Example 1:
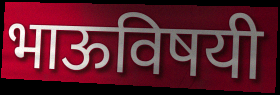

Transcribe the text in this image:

भाऊविषयी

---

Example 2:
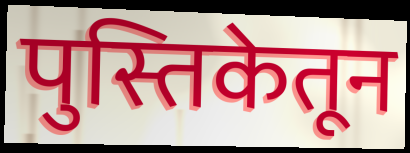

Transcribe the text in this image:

पुस्तिकेतून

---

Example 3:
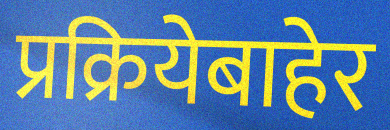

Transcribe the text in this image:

प्रक्रियेबाहेर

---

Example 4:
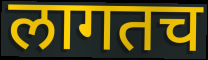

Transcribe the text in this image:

लागतच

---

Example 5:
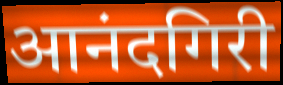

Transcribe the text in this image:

आनंदगिरी